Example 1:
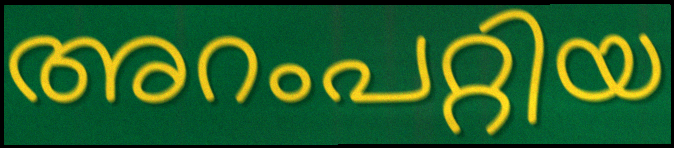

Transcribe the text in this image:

അറംപറ്റിയ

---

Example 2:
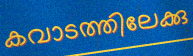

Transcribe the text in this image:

കവാടത്തിലേക്കു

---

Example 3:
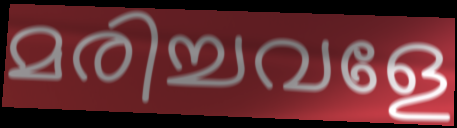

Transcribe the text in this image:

മരിച്ചവളേ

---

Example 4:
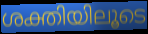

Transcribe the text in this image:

ശക്തിയിലൂടെ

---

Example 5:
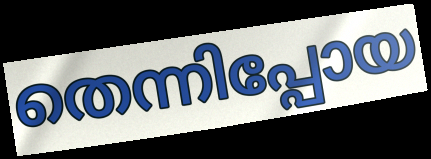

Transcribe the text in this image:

തെന്നിപ്പോയ